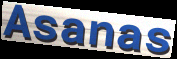
Asanas